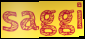
saggi